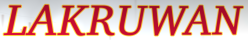
LAKRUWAN